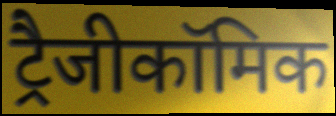
ट्रैजीकॉमिक